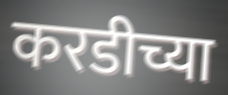
करडीच्या